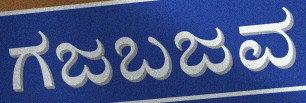
ಗಜಬಜವ